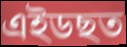
এইডছত